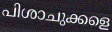
പിശാചുക്കളെ